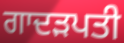
ਗਾਦੜਪਤੀ